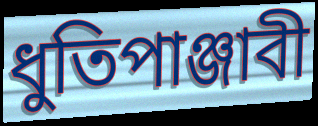
ধুতিপাঞ্জাবী